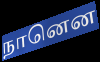
நானென